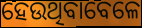
ହେଉଥିବାବେଳେ